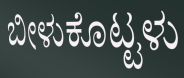
ಬೀಳುಕೊಟ್ಟಳು